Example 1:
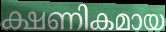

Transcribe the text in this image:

ക്ഷണികമായ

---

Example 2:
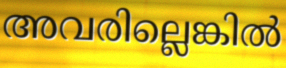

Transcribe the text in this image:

അവരില്ലെങ്കിൽ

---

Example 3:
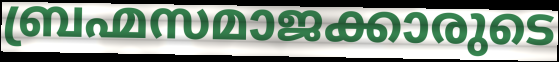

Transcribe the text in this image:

ബ്രഹ്മസമാജക്കാരുടെ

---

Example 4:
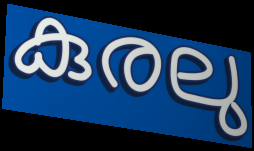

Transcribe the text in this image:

കുരലു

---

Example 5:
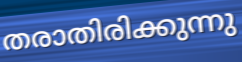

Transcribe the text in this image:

തരാതിരിക്കുന്നു